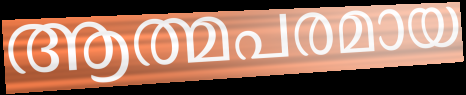
ആത്മപരമായ